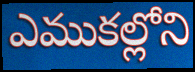
ఎముకల్లోని